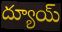
ద్యూయ్